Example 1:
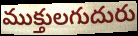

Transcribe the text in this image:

ముక్తులగుదురు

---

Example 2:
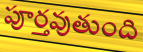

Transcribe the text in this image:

పూర్తవుతుంది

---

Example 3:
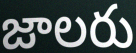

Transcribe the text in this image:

జాలరు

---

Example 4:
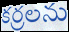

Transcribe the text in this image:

కర్రలను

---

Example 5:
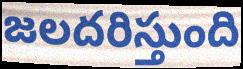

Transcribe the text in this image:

జలదరిస్తుంది